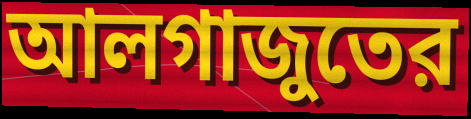
আলগাজুতের